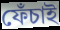
ফেঁচাই